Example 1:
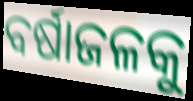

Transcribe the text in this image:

ବର୍ଷାଜଳକୁ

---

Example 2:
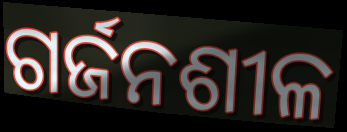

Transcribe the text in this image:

ଗର୍ଜନଶୀଳ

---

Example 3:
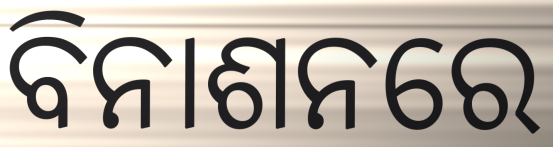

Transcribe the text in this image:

ବିନାଶନରେ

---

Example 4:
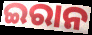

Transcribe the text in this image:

ଇରାନ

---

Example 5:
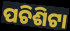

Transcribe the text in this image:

ପଚିଶିଟା